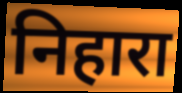
निहारा